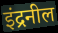
इंद्रनील